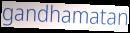
gandhamatan